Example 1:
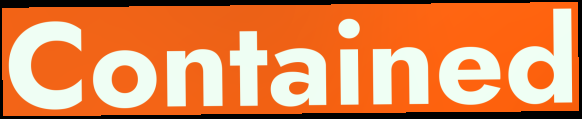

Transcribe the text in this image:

Contained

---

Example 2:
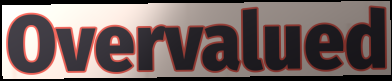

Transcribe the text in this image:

Overvalued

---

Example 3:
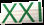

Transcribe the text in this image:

XXI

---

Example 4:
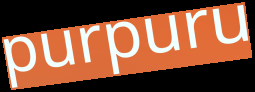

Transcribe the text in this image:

purpuru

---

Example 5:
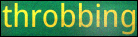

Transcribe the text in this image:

throbbing